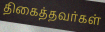
திகைத்தவர்கள்